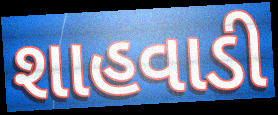
શાહવાડી